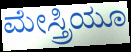
ಮೇಸ್ತ್ರಿಯೂ